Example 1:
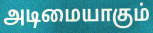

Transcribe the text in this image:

அடிமையாகும்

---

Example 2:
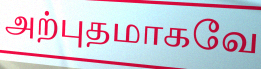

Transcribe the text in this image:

அற்புதமாகவே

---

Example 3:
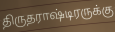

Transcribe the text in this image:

திருதராஷ்டிரருக்கு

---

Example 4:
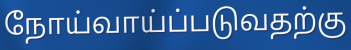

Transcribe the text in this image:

நோய்வாய்ப்படுவதற்கு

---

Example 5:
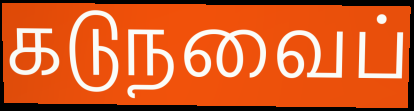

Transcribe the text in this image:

கடுநவைப்